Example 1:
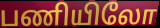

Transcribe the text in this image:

பணியிலோ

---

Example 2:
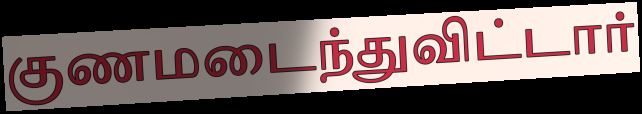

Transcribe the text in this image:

குணமடைந்துவிட்டார்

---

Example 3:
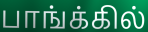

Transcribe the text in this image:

பாங்க்கில்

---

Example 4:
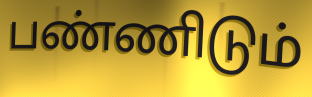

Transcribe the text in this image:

பண்ணிடும்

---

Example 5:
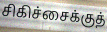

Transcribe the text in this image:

சிகிச்சைக்குத்